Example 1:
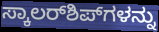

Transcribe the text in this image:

ಸ್ಕಾಲರ್‌ಶಿಪ್‌ಗಳನ್ನು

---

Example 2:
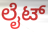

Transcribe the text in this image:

ಲೈಟ್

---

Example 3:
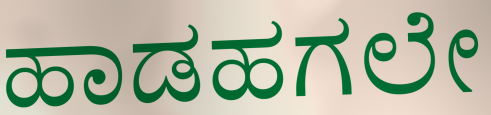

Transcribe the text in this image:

ಹಾಡಹಗಲೇ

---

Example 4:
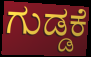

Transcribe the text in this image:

ಗುಡ್ಡಕೆ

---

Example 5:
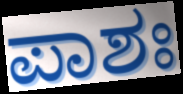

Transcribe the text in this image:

ಪಾಶಃ